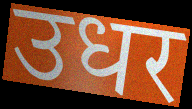
उधर